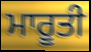
ਮਾਰੂਤੀ